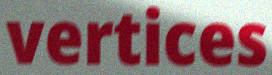
vertices